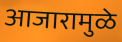
आजारामुळे